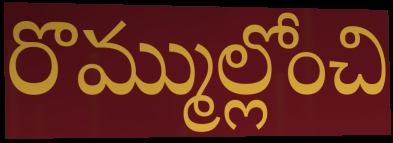
రొమ్ముల్లోంచి